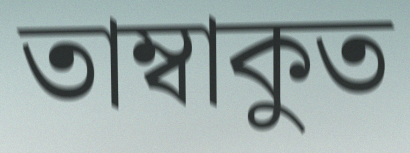
তাম্বাকুত